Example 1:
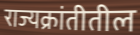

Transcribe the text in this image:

राज्यक्रांतीतील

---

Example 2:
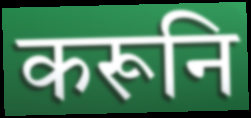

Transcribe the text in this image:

करूनि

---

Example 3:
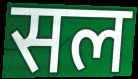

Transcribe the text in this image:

सल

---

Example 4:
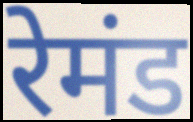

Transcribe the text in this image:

रेमंड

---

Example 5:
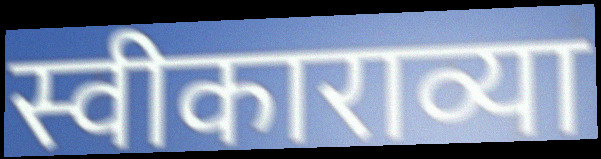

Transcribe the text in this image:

स्वीकाराव्या